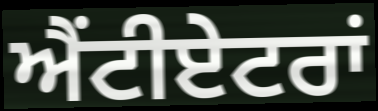
ਐਂਟੀਏਟਰਾਂ